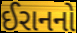
ઈરાનનો